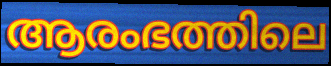
ആരംഭത്തിലെ